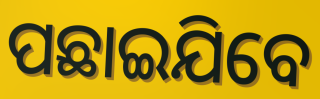
ପଛାଇଯିବେ